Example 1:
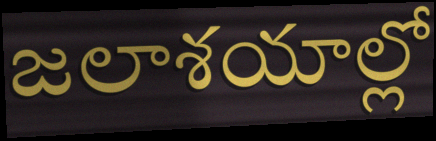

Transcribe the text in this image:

జలాశయాల్లో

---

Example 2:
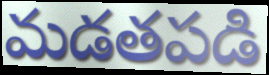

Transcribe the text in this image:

మడతపడి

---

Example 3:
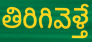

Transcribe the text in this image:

తిరిగివెళ్తే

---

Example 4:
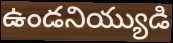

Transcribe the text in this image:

ఉండనియ్యుడి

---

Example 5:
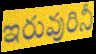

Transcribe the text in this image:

ఇరువురినీ